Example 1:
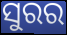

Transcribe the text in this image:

ସୁରର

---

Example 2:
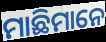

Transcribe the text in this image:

ମାଛିମାନେ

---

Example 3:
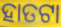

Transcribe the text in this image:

ହାତଟା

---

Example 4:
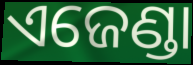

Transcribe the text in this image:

ଏଜେଣ୍ଡା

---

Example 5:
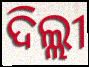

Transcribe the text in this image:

ଦିଲ୍ଲୀ